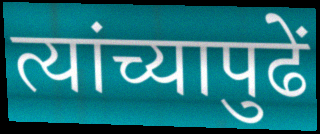
त्यांच्यापुढें